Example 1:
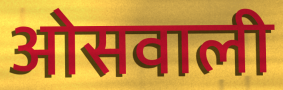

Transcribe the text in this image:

ओसवाली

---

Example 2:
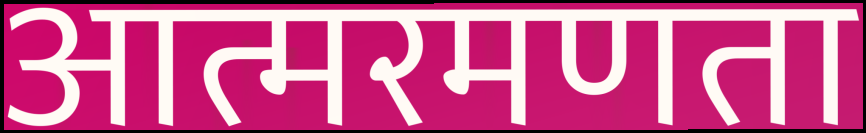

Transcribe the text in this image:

आत्मरमणता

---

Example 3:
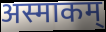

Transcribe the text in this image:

अस्माकम्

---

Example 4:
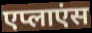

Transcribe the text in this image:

एप्लाएंस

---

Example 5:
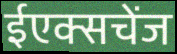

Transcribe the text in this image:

ईएक्सचेंज